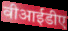
वीआईडीए